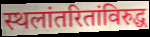
स्थलांतरितांविरुद्ध